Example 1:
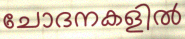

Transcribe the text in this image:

ചോദനകളിൽ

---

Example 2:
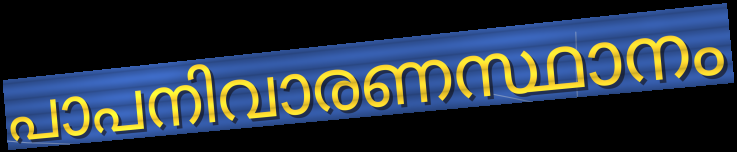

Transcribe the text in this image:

പാപനിവാരണസ്ഥാനം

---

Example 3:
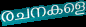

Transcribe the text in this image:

രചനകളെ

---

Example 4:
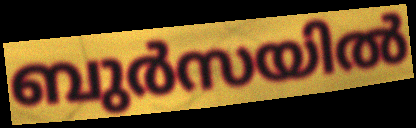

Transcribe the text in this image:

ബുർസയിൽ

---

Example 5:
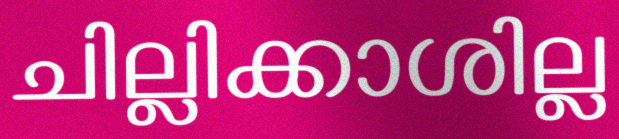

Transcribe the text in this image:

ചില്ലിക്കാശില്ല